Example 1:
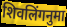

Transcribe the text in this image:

शिवलिंगनुमा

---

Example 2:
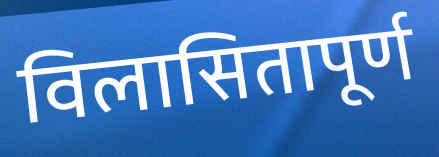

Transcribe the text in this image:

विलासितापूर्ण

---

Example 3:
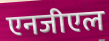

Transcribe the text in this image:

एनजीएल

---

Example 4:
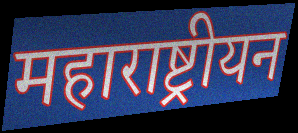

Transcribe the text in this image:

महाराष्ट्रीयन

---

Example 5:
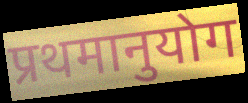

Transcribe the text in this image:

प्रथमानुयोग